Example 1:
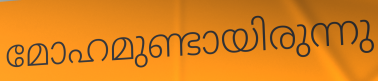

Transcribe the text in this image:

മോഹമുണ്ടായിരുന്നു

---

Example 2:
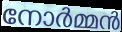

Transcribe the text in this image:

നോർമ്മൻ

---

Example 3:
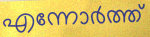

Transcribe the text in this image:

എന്നോർത്ത്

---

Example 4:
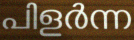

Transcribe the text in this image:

പിളർന്ന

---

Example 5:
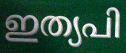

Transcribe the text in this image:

ഇത്യപി